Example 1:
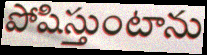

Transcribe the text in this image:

పోషిస్తుంటాను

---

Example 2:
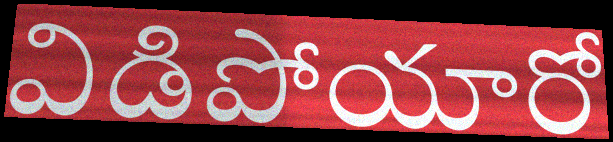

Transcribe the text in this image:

విడిపోయారో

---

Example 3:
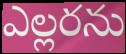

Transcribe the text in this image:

ఎల్లరను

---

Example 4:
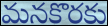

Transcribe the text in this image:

మనకొరకు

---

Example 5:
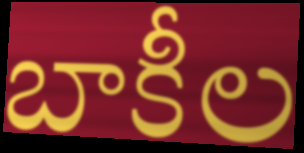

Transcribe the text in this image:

బాకీల